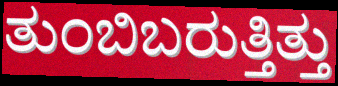
ತುಂಬಿಬರುತ್ತಿತ್ತು